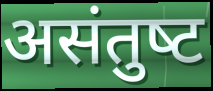
असंतुष्‍ट